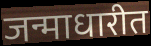
जन्माधारीत